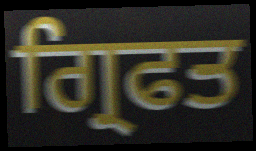
ਗ੍ਰਿਫਤ